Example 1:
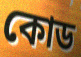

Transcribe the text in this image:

কোড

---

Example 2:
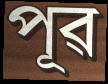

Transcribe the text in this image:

পূৱ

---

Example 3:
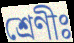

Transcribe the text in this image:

শ্ৰেণীঃ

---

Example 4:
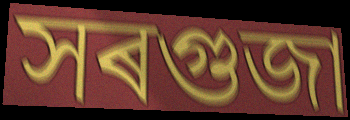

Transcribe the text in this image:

সৰগুজা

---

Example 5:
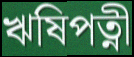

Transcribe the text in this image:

ঋষিপত্নী